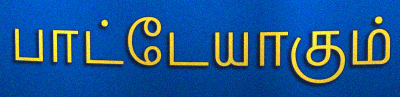
பாட்டேயாகும்